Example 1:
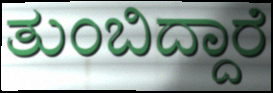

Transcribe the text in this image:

ತುಂಬಿದ್ದಾರೆ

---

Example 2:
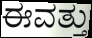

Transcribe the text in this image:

ಈವತ್ತು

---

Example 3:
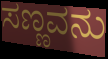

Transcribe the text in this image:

ಸಣ್ಣವನು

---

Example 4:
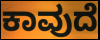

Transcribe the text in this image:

ಕಾವುದೆ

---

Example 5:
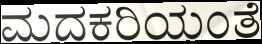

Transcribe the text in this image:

ಮದಕರಿಯಂತೆ